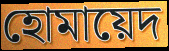
হোমায়েদ